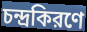
চন্দ্রকিরণে